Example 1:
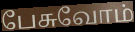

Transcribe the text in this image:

பேசுவோம்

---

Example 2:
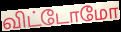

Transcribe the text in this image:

விட்டோமோ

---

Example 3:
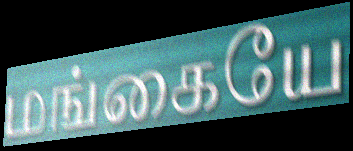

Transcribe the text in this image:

மங்கையே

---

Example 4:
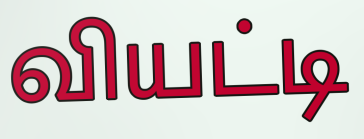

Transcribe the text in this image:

வியட்டி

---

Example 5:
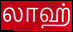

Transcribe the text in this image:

லாஹ்